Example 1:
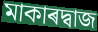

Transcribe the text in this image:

মাকাৰদ্বাজ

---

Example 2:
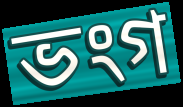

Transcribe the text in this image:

ভংগ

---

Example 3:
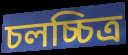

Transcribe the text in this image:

চলচ্চিত্ৰ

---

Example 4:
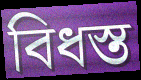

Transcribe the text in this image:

বিধস্ত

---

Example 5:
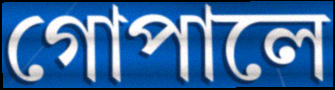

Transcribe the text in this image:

গোপালে